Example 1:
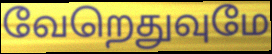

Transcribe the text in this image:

வேறெதுவுமே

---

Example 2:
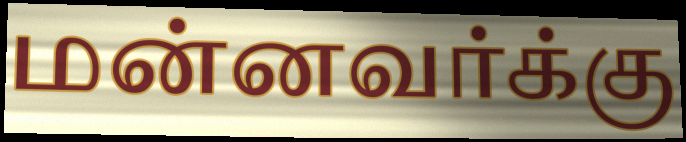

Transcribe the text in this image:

மன்னவர்க்கு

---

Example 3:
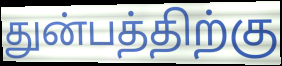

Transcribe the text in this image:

துன்பத்திற்கு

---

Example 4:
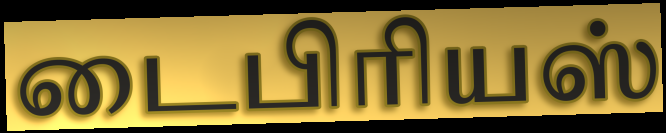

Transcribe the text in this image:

டைபிரியஸ்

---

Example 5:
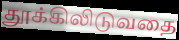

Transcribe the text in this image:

தூக்கிலிடுவதை